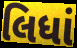
લિધાં